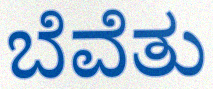
ಬೆವೆತು